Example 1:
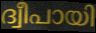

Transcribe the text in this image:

ദ്വീപായി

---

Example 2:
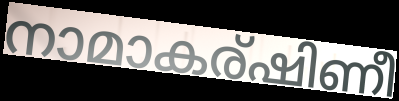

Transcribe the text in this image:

നാമാകര്ഷിണീ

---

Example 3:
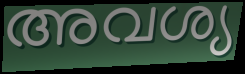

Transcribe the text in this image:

അവശ്യ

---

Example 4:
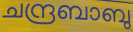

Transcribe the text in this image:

ചന്ദ്രബാബു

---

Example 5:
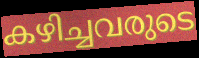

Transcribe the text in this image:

കഴിച്ചവരുടെ